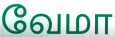
வேமா